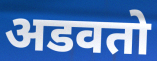
अडवतो